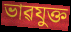
ভাৱযুক্ত